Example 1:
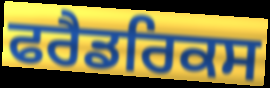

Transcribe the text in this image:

ਫਰੈਡਰਿਕਸ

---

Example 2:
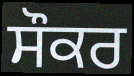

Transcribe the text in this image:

ਸੌਕਰ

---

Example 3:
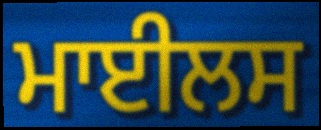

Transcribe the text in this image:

ਮਾਈਲਸ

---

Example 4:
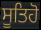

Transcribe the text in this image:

ਸੂਤਿਹੋ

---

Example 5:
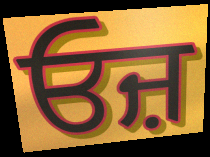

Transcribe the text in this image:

ਓਜ਼